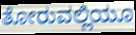
ತೋರುವಲ್ಲಿಯೂ